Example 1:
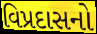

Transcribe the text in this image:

વિપ્રદાસનો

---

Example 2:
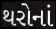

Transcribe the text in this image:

થરોનાં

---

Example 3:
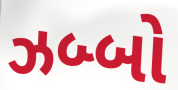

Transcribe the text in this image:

ઝબ્બો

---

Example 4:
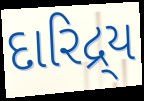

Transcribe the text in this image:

દારિદ્ર્ય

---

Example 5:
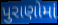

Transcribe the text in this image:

પુરાણોમાં